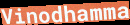
Vinodhamma